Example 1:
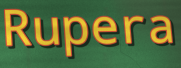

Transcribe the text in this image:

Rupera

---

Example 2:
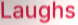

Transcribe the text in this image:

Laughs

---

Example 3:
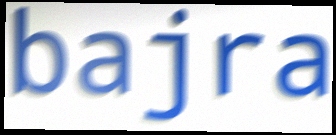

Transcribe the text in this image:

bajra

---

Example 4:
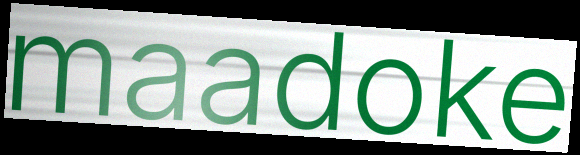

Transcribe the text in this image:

maadoke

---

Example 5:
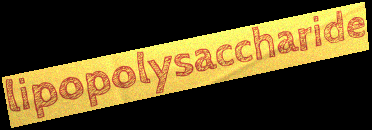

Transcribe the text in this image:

lipopolysaccharide